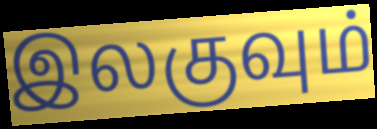
இலகுவும்